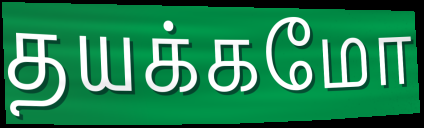
தயக்கமோ